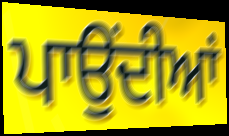
ਪਾਉਂਦੀਆਂ